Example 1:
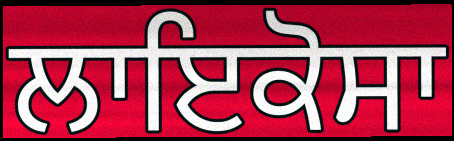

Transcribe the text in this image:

ਲਾਇਕੋਸਾ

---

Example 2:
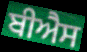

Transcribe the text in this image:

ਬੀਐਸ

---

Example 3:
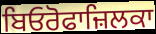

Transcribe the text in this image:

ਬਿਓਰੋਫਾਜ਼ਿਲਕਾ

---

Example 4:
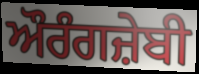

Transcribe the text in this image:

ਔਰੰਗਜ਼ੇਬੀ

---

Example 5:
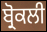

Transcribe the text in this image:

ਬ੍ਰੋਕਲੀ